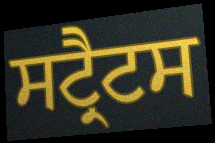
ਸਟ੍ਰੈਟਸ